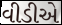
વીડીએ